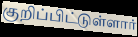
குறிப்பிட்டுள்ளார்